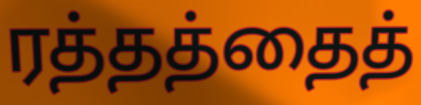
ரத்தத்தைத்